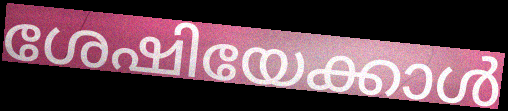
ശേഷിയേക്കാൾ